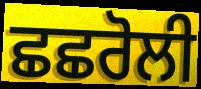
ਛਛਰੋਲੀ